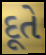
દૂતે